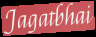
Jagatbhai